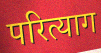
परित्याग